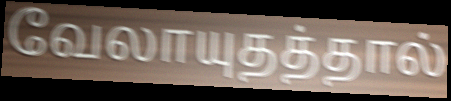
வேலாயுதத்தால்